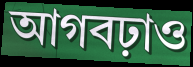
আগবঢ়াও